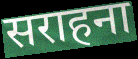
सराहना